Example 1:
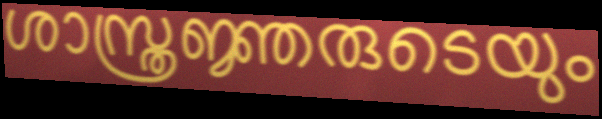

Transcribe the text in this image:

ശാസ്ത്രജ്ഞരുടെയും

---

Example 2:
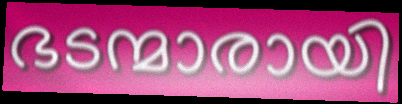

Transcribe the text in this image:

ഭടന്മാരായി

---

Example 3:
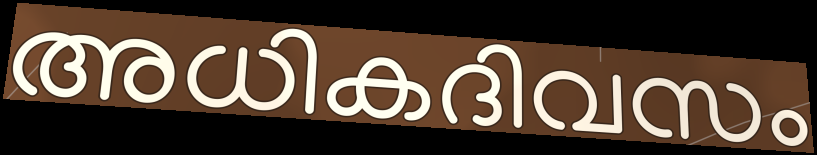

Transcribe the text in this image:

അധികദിവസം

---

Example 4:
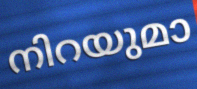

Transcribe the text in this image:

നിറയുമാ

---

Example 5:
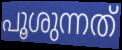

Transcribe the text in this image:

പൂശുന്നത്